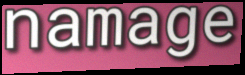
namage